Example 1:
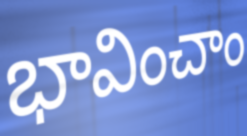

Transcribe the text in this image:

భావించాం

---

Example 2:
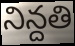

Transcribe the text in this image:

నిన్దతి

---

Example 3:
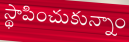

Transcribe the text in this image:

స్థాపించుకున్నాం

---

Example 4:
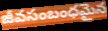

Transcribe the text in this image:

జీవసంబంధమైన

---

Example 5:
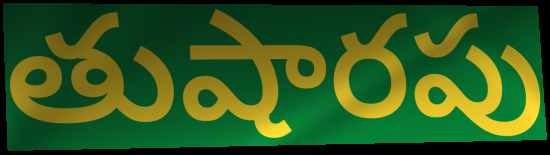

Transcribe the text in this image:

తుషారపు